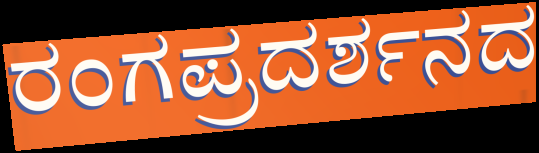
ರಂಗಪ್ರದರ್ಶನದ